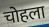
चोहला